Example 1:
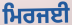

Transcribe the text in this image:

ਮਿਰਜਈ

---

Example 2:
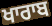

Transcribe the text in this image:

ਖਾਰਾਬ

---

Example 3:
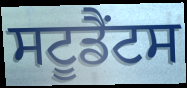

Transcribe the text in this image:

ਸਟੂਡੈਂਟਸ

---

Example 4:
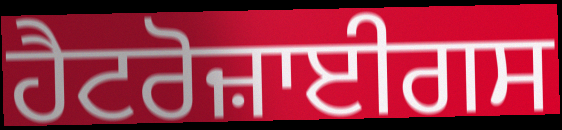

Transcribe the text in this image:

ਹੈਟਰੋਜ਼ਾਈਗਸ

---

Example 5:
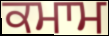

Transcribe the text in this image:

ਕਮਾਮ